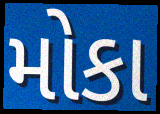
મોકા